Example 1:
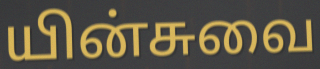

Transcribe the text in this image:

யின்சுவை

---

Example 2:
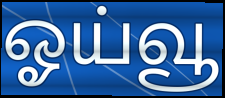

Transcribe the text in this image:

ஓய்வூ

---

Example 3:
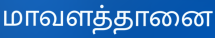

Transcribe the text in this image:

மாவளத்தானை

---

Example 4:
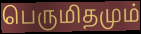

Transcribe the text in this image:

பெருமிதமும்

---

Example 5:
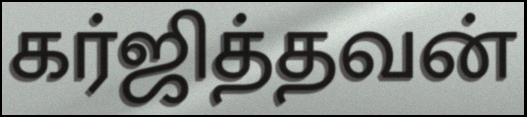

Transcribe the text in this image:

கர்ஜித்தவன்